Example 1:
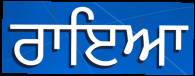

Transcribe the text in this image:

ਰਾਇਆ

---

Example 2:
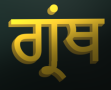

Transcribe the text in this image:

ਗ੍ਰਂਥ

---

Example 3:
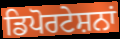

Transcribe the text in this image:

ਡਿਪੋਰਟੇਸ਼ਨਾਂ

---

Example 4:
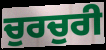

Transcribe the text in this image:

ਚੁਰਚੁਰੀ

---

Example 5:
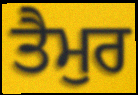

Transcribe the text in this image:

ਤੈਮੁਰ